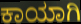
ಕಾಯಾಗಿ